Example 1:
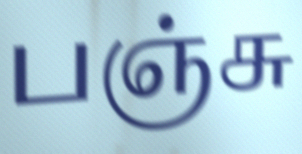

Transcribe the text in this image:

பஞ்சு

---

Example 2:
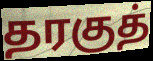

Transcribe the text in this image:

தரகுத்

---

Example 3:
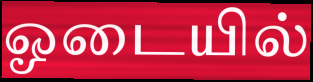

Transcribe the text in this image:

ஓடையில்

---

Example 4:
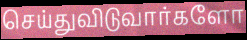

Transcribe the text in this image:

செய்துவிடுவார்களோ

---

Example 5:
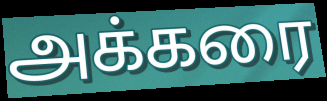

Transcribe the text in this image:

அக்கரை